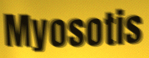
Myosotis